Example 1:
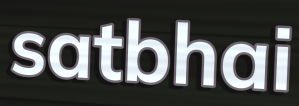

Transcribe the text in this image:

satbhai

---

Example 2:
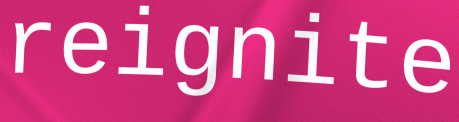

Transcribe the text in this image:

reignite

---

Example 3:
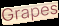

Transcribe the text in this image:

Grapes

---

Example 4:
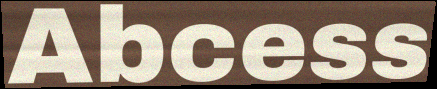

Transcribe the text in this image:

Abcess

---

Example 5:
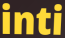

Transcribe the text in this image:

inti